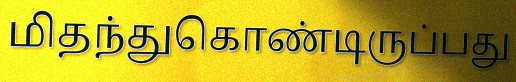
மிதந்துகொண்டிருப்பது